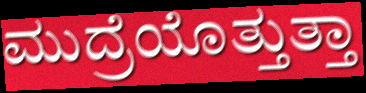
ಮುದ್ರೆಯೊತ್ತುತ್ತಾ